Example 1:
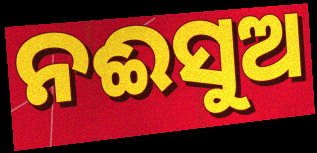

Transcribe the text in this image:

ନଈସୁଅ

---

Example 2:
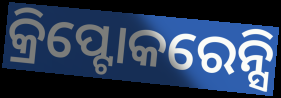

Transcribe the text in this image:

କ୍ରିପ୍ଟୋକରେନ୍ସି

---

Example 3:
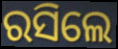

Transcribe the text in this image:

ରସିଲେ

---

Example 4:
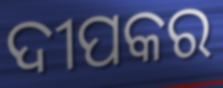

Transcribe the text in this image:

ଦୀପକର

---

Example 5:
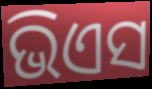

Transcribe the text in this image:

ଭିଏସ